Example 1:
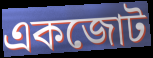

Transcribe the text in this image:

একজোট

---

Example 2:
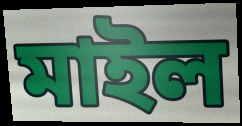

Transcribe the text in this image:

মাইল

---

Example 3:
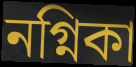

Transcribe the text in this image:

নগ্নিকা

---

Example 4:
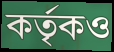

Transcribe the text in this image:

কর্তৃকও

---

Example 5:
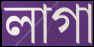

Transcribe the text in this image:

লাগা